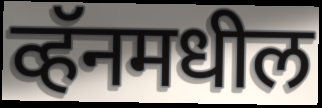
व्हॅनमधील